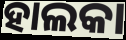
ହାଲକା